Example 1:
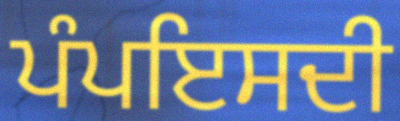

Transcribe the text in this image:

ਪੰਪਇਸਦੀ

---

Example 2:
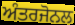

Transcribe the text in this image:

ਅੰਤਰਜੋਨਲ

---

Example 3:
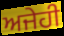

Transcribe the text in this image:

ਅਜੇਹੀ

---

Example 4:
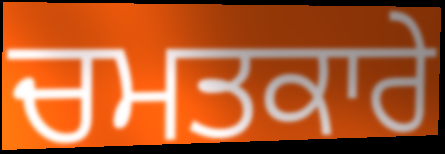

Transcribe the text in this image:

ਚਮਤਕਾਰੇ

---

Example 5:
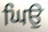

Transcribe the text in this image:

ਘਿਉ